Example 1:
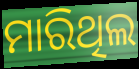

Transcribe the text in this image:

ମାରିଥିଲ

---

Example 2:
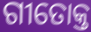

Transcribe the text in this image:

ଗୀତୋକ୍ତ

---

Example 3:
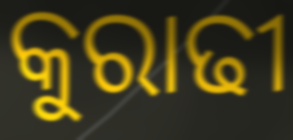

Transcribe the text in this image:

କୁରାଢୀ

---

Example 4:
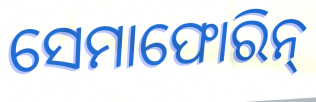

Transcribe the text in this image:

ସେମାଫୋରିନ୍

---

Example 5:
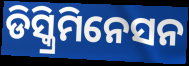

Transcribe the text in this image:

ଡିସ୍କ୍ରିମିନେସନ